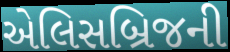
એલિસબ્રિજની